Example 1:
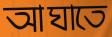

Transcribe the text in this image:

আঘাতে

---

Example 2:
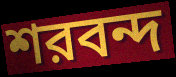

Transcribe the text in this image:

শরবন্দ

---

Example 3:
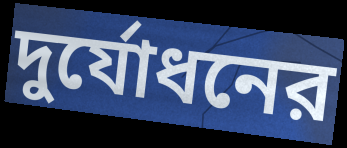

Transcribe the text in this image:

দুর্যোধনের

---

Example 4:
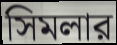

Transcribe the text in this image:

সিমলার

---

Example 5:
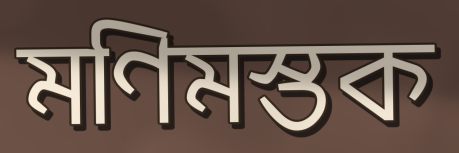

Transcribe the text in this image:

মণিমস্তক